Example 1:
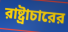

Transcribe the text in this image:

রাষ্ট্রাচারের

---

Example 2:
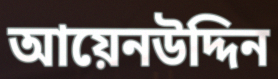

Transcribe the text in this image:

আয়েনউদ্দিন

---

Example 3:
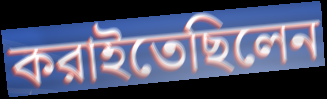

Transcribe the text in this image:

করাইতেছিলেন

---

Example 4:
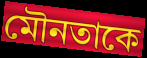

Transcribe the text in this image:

মৌনতাকে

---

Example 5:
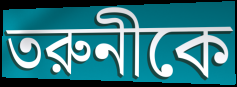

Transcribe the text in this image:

তরুনীকে